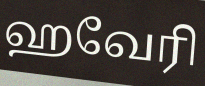
ஹவேரி